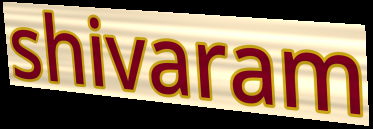
shivaram